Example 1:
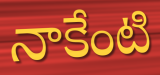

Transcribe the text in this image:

నాకేంటి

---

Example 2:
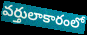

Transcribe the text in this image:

వర్తులాకారంలో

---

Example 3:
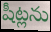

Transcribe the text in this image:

షీట్లను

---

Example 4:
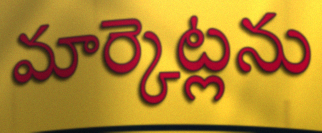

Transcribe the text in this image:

మార్కెట్లను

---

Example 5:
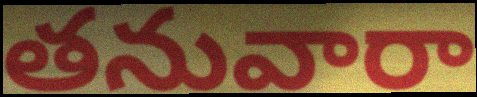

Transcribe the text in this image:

తనువారా